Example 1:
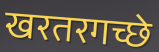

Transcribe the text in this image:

खरतरगच्छे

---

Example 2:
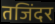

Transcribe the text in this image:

तजिंदर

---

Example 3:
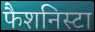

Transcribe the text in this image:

फैशनिस्टा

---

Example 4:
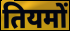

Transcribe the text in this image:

तियमों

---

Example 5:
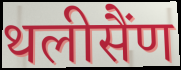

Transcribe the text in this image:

थलीसैंण